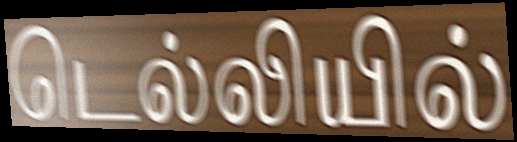
டெல்லியில்